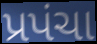
પ્રપંચા